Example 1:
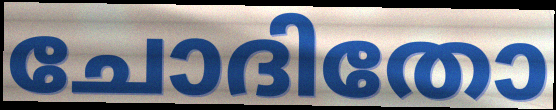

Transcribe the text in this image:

ചോദിതോ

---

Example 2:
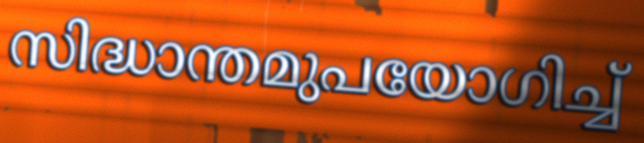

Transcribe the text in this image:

സിദ്ധാന്തമുപയോഗിച്ച്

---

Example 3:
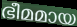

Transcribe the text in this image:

ഭീമമായ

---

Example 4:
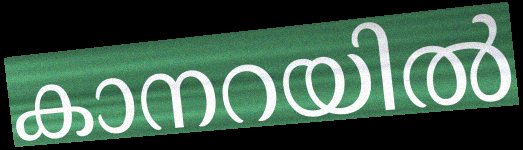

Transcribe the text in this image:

കാനറയിൽ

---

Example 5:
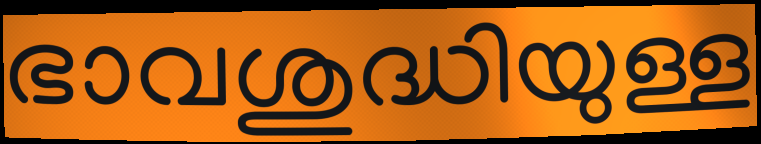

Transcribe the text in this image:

ഭാവശുദ്ധിയുള്ള